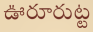
ఊరూరుట్ట